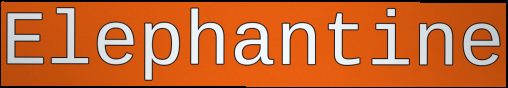
Elephantine